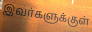
இவர்களுக்குள்